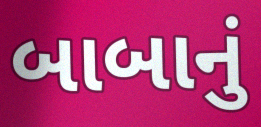
બાબાનું